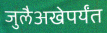
जुलैअखेपर्यंत